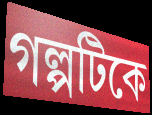
গল্পটিকে